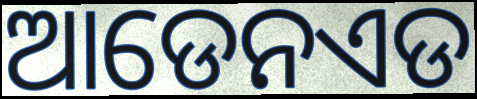
ଆଡେନଏଡ